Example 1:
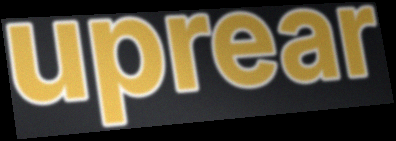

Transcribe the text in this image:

uprear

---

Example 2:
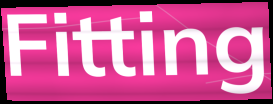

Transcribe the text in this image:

Fitting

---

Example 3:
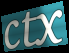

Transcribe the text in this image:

ctx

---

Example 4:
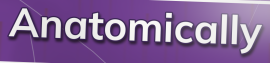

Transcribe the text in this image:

Anatomically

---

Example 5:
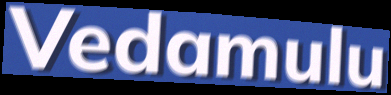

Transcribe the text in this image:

Vedamulu